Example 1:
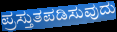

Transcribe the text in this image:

ಪ್ರಸ್ತುತಪಡಿಸುವುದು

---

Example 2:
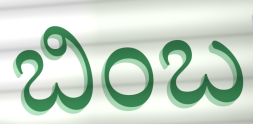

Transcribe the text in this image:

ಬಿಂಬ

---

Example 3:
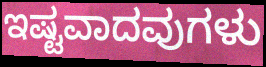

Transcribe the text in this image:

ಇಷ್ಟವಾದವುಗಳು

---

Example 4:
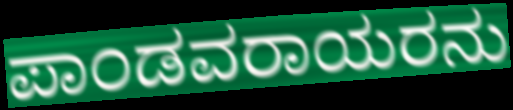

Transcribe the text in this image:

ಪಾಂಡವರಾಯರನು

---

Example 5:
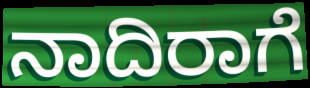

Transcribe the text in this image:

ನಾದಿರಾಗೆ